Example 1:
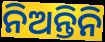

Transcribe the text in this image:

ନିଅନ୍ତିନି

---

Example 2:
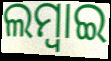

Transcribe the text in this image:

ଲମ୍ବାଇ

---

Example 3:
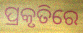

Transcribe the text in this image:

ପ୍ରକୃତିରେ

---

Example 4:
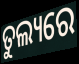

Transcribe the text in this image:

ତୁଲ୍ୟରେ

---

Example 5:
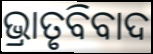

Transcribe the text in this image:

ଭ୍ରାତୃବିବାଦ